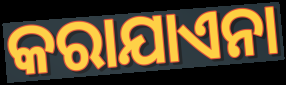
କରାଯାଏନା